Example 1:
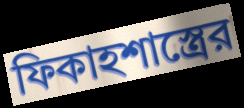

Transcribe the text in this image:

ফিকাহশাস্ত্রের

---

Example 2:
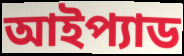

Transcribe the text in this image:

আইপ্যাড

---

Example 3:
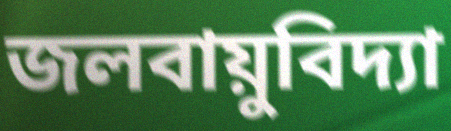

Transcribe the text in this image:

জলবায়ুবিদ্যা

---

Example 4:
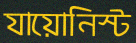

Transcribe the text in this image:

যায়োনিস্ট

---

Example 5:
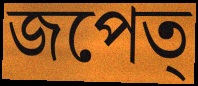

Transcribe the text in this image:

জপেত্